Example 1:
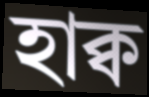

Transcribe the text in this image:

হাক্ব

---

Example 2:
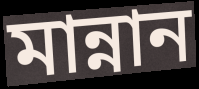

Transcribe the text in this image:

মান্নান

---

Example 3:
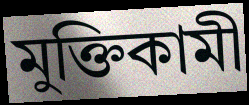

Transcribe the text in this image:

মুক্তিকামী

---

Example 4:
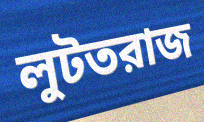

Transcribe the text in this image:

লুটতরাজ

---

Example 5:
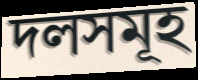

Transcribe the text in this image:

দলসমূহ